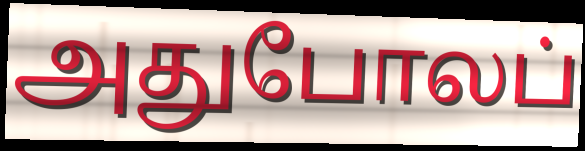
அதுபோலப்